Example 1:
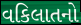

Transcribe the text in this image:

વકિલાતનો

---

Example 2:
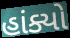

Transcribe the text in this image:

હાંક્યો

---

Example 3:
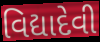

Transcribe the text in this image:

વિદ્યાદેવી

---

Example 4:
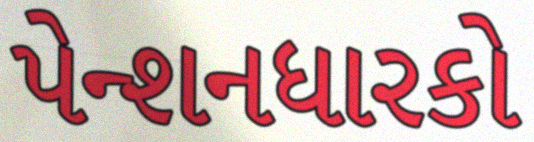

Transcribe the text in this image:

પેન્શનધારકો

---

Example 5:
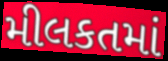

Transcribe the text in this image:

મીલકતમાં